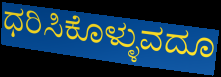
ಧರಿಸಿಕೊಳ್ಳುವದೂ